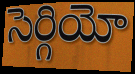
సెర్గియో